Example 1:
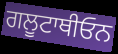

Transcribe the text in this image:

ਗਲੂਟਾਥੀਓਨ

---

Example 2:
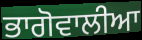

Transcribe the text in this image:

ਭਾਗੋਵਾਲੀਆ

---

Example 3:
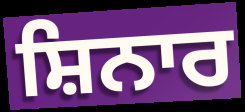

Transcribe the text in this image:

ਸ਼ਿਨਾਰ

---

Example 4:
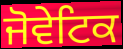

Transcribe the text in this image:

ਜੋਵੇਟਿਕ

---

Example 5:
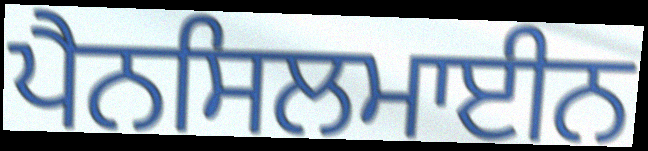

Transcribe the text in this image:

ਪੈਨਸਿਲਮਾਈਨ